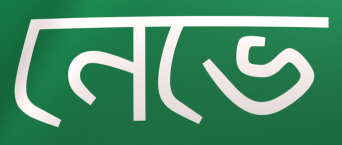
নেভে